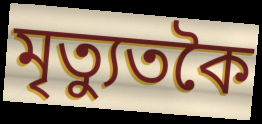
মৃত্যুতকৈ